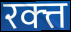
रक्त्त